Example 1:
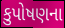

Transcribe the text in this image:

કુપોષણના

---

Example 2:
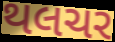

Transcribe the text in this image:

થલચર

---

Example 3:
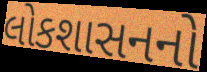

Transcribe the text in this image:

લોકશાસનનો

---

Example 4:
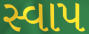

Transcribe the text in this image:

સ્વાપ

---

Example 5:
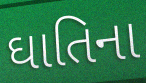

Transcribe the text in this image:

ઘાતિના